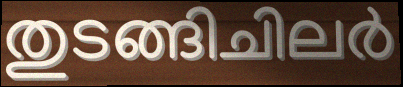
തുടങ്ങിചിലർ